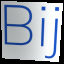
Bij